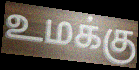
உமக்கு